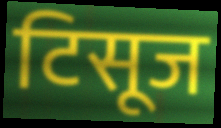
टिसूज